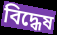
বিদ্ধেষ